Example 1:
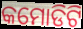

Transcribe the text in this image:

କମୋଡିଟି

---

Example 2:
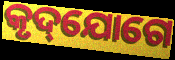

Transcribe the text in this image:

କୃଦ୍‌ଯୋଗେ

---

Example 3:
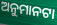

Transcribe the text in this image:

ଅନୁମାନଟା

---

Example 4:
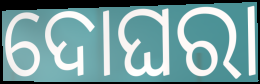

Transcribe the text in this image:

ଦୋଘରା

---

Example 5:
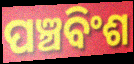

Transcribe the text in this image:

ପଞ୍ଚବିଂଶ